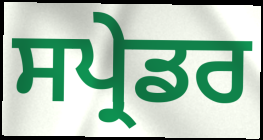
ਸਪ੍ਰੇਡਰ